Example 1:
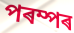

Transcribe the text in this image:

পৰম্পৰ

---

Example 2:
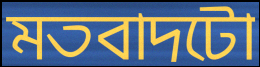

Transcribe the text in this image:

মতবাদটো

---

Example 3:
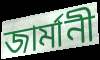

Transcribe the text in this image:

জাৰ্মানী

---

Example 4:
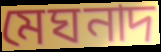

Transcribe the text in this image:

মেঘনাদ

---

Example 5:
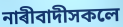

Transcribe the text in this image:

নাৰীবাদীসকলে